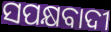
ସପକ୍ଷବାଦୀ